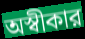
অস্বীকার